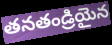
తనతండ్రియైన